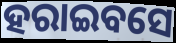
ହରାଇବସେ